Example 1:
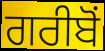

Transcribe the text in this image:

ਗਰੀਬੋਂ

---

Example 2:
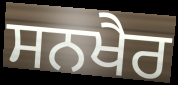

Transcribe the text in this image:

ਸਨਖੈਰ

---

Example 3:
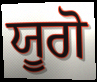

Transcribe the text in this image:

ਯੂਗੋ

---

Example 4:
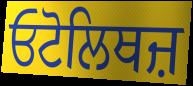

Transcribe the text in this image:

ਓਟੋਲਿਥਜ਼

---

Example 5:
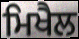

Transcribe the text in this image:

ਮਿਖੈਲ